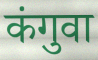
कंगुवा